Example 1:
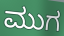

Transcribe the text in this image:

ಮುಗ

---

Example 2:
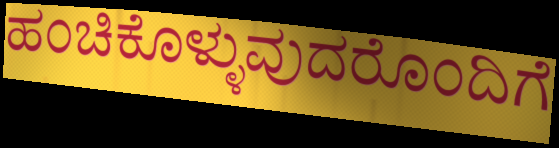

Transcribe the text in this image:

ಹಂಚಿಕೊಳ್ಳುವುದರೊಂದಿಗೆ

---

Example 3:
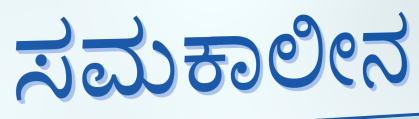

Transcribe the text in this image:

ಸಮಕಾಲೀನ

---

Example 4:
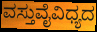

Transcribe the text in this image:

ವಸ್ತುವೈವಿಧ್ಯದ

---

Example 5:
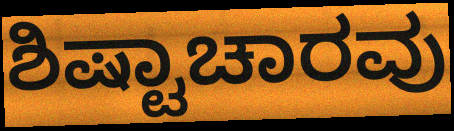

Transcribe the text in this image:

ಶಿಷ್ಟಾಚಾರವು